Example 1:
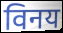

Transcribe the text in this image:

विनय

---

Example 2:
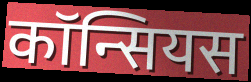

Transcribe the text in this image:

कॉन्सियस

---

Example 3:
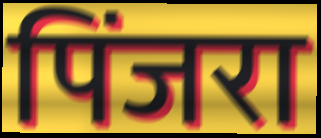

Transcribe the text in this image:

पिंजरा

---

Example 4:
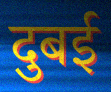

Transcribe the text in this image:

दुबई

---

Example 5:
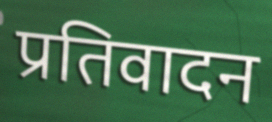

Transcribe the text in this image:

प्रतिवादन